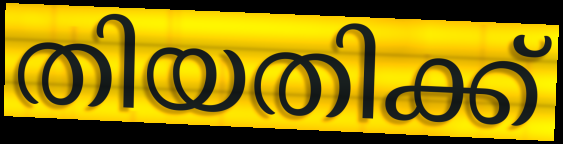
തിയതിക്ക്